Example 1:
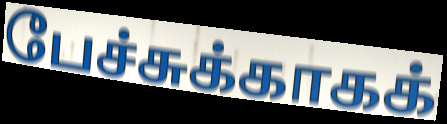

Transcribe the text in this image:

பேச்சுக்காகக்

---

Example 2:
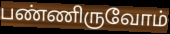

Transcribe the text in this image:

பண்ணிருவோம்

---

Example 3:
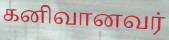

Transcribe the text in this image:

கனிவானவர்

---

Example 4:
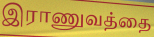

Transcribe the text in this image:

இராணுவத்தை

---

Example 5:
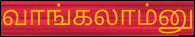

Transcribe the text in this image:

வாங்கலாம்னு